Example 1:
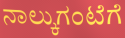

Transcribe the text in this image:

ನಾಲ್ಕುಗಂಟೆಗೆ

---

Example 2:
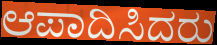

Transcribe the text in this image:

ಆಪಾದಿಸಿದರು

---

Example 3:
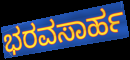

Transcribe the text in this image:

ಭರವಸಾರ್ಹ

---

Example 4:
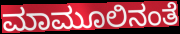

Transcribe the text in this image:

ಮಾಮೂಲಿನಂತೆ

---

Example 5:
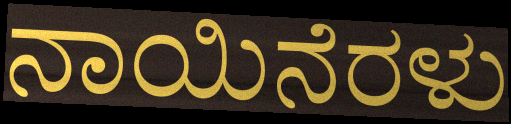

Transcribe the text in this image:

ನಾಯಿನೆರಳು